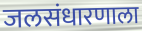
जलसंधारणाला